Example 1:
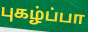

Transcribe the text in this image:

புகழ்ப்பா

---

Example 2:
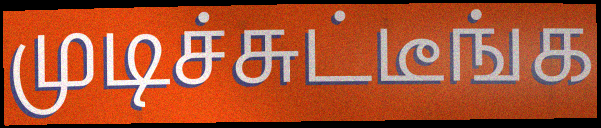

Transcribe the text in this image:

முடிச்சுட்டீங்க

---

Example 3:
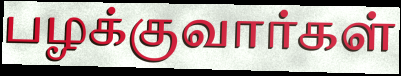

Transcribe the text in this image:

பழக்குவார்கள்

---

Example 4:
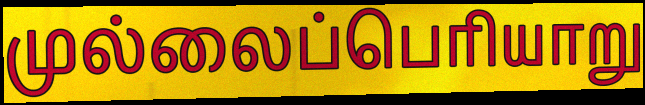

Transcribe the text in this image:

முல்லைப்பெரியாறு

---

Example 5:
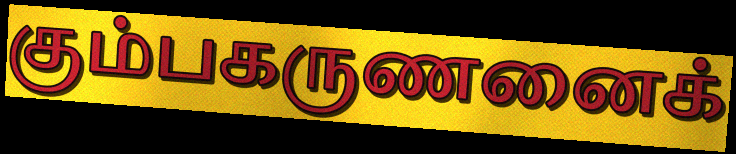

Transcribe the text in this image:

கும்பகருணனைக்